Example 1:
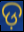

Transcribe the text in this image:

ଡ଼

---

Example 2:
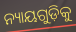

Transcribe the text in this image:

ନ୍ୟାୟଗୁଡ଼ିକୁ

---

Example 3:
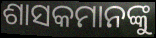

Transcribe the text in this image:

ଶାସକମାନଙ୍କୁ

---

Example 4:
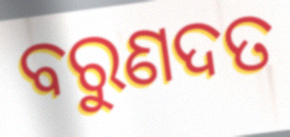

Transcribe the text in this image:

ବରୁଣଦତ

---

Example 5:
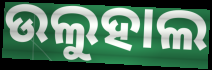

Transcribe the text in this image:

ଉଲୁହାଲ